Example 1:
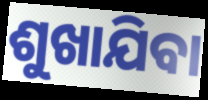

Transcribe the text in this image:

ଶୁଖାଯିବା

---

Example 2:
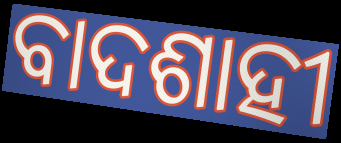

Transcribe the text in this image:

ବାଦଶାହୀ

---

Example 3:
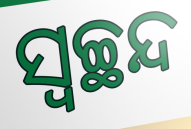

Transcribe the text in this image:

ସ୍ୱଚ୍ଛନ୍ଦ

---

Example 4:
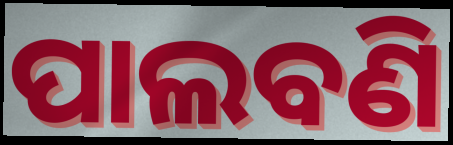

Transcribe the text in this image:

ପାଲବଣି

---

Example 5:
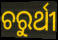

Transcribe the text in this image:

ଚରୁର୍ଥୀ